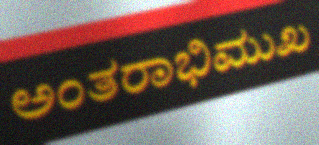
ಅಂತರಾಭಿಮುಖ